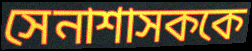
সেনাশাসককে